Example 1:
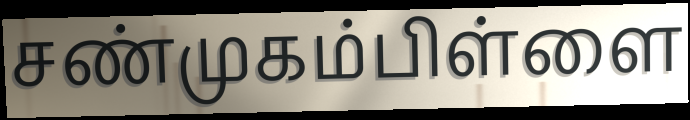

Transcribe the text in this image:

சண்முகம்பிள்ளை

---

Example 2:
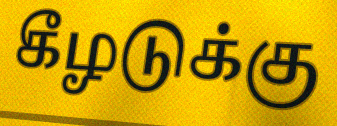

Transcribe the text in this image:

கீழடுக்கு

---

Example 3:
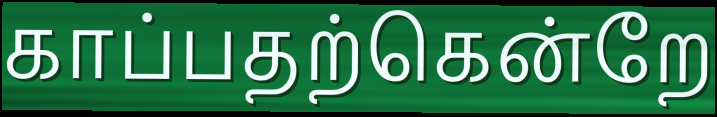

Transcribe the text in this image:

காப்பதற்கென்றே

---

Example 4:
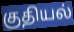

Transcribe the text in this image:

குதியல்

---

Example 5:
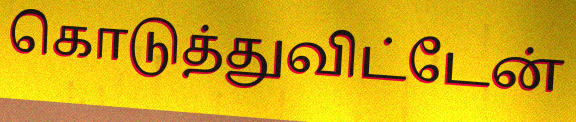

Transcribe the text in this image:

கொடுத்துவிட்டேன்